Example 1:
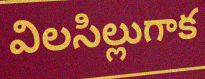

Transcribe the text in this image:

విలసిల్లుగాక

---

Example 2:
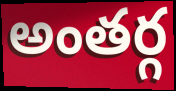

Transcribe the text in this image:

అంతర్గ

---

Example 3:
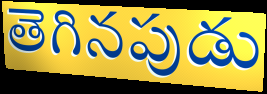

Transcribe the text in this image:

తెగినపుడు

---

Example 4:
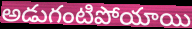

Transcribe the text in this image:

అడుగంటిపోయాయి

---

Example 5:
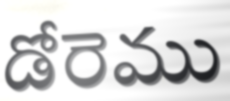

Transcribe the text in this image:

డోరెము